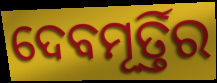
ଦେବମୂର୍ତ୍ତିର